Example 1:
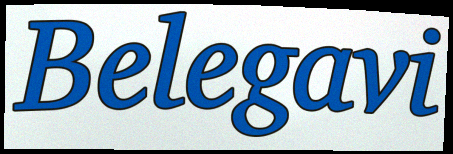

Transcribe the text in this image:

Belegavi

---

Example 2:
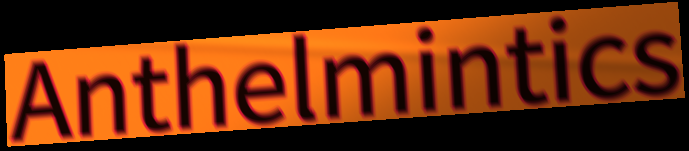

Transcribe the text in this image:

Anthelmintics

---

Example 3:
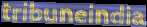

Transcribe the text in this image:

tribuneindia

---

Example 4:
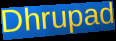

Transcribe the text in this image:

Dhrupad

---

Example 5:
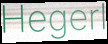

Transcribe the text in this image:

Hegerl